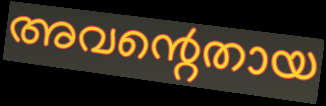
അവന്റെതായ